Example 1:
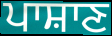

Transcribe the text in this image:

ਪਾਸ਼ਾਣ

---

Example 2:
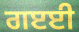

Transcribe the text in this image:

ਗੲਈ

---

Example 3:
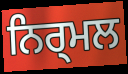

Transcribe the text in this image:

ਨਿਰ੍ਮਲ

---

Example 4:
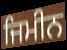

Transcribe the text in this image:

ਜਿਮੀਨ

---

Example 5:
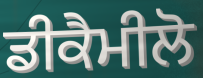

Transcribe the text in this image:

ਡੀਕੈਮੀਲੋ